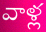
వాళ్ల